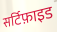
सर्टिफ़ाइड